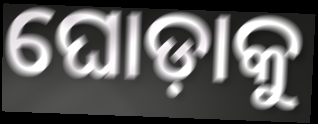
ଘୋଡ଼ାକୁ